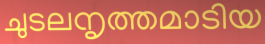
ചുടലനൃത്തമാടിയ